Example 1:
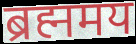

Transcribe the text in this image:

ब्रह्ममय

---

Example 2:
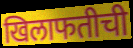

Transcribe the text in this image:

खिलाफतीची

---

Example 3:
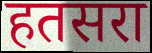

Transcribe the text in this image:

हतसरा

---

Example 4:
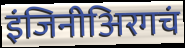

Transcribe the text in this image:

इंजिनीअिरगचं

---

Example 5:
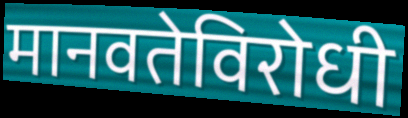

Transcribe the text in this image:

मानवतेविरोधी